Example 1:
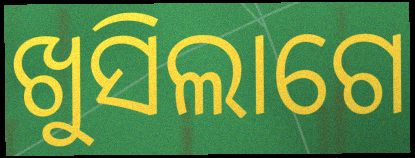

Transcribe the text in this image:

ଖୁସିଲାଗେ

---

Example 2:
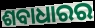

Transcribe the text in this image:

ଶବାଧାରର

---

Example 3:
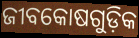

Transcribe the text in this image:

ଜୀବକୋଷଗୁଡ଼ିକ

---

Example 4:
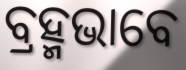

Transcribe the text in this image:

ବ୍ରହ୍ମଭାବେ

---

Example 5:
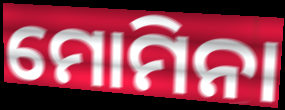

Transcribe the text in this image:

ମୋମିନା